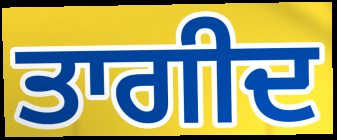
ਤਾਗੀਦ